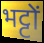
भट्टों